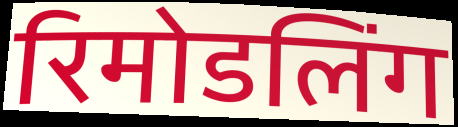
रिमोडलिंग